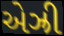
એઝ્રી